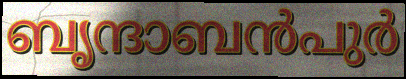
ബൃന്ദാബൻപുർ